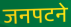
जनपटने